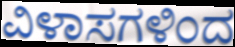
ವಿಳಾಸಗಳಿಂದ